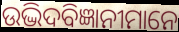
ଉଦ୍ଭିଦବିଜ୍ଞାନୀମାନେ